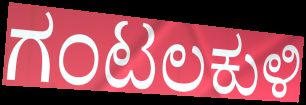
ಗಂಟಲಕುಳಿ